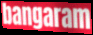
bangaram